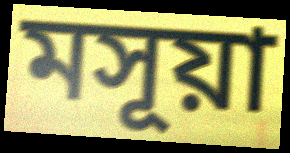
মসূয়া